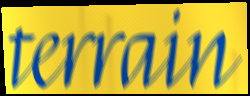
terrain